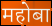
महोबा